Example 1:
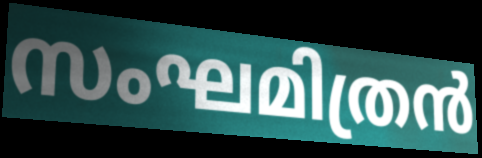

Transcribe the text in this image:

സംഘമിത്രൻ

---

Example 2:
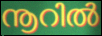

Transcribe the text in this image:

നൂറിൽ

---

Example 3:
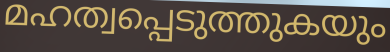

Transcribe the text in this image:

മഹത്വപ്പെടുത്തുകയും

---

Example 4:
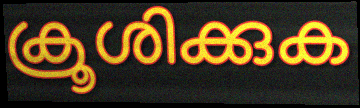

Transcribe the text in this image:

ക്രൂശിക്കുക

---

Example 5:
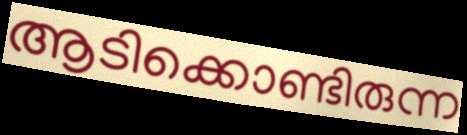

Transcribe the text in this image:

ആടിക്കൊണ്ടിരുന്ന